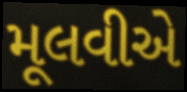
મૂલવીએ